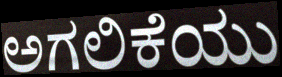
ಅಗಲಿಕೆಯು